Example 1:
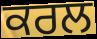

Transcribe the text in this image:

ਕਰਲ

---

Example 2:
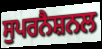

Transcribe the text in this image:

ਸੁਪਰਨੈਸ਼ਨਲ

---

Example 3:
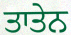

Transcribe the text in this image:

ਤਾਤੇਨ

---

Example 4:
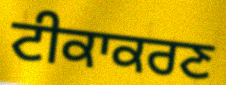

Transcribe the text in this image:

ਟੀਕਾਕਰਣ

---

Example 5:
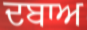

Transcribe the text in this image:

ਦਬਾਅ